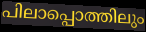
പിലാപ്പൊത്തിലും